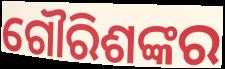
ଗୌରିଶଙ୍କର